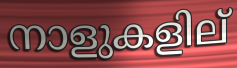
നാളുകളില്